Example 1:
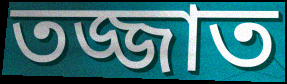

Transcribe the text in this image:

তজ্জাত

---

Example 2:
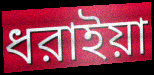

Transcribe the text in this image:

ধরাইয়া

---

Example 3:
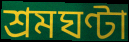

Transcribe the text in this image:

শ্রমঘণ্টা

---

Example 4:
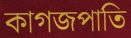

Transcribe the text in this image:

কাগজপাতি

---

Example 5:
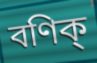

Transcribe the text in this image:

বণিক্